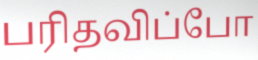
பரிதவிப்போ